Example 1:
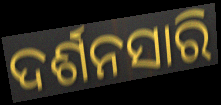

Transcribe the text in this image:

ଦର୍ଶନସାରି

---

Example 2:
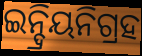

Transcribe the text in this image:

ଇନ୍ଦ୍ରିୟନିଗ୍ରହ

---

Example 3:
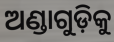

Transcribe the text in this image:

ଅଣ୍ଡାଗୁଡ଼ିକୁ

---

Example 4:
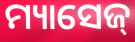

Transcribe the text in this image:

ମ୍ୟାସେଜ୍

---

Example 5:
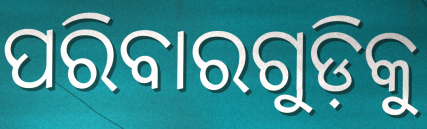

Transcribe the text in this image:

ପରିବାରଗୁଡ଼ିକୁ